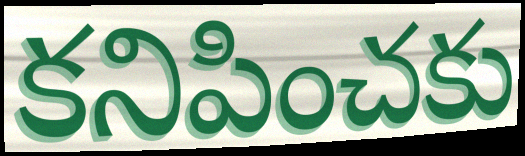
కనిపించకు